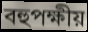
বহুপক্ষীয়